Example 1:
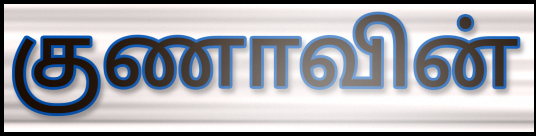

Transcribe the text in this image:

குணாவின்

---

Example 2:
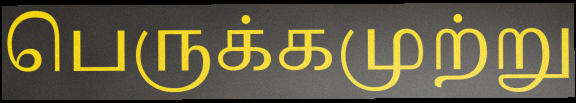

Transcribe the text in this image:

பெருக்கமுற்று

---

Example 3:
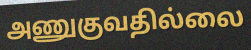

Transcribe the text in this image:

அணுகுவதில்லை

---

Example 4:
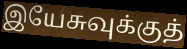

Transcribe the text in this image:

இயேசுவுக்குத்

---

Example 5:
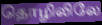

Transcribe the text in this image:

தொழிலிலே